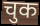
चुक